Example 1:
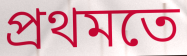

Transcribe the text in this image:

প্ৰথমতে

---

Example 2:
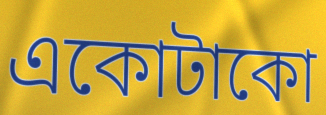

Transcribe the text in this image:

একোটাকো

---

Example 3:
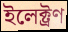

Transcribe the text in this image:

ইলেক্ট্ৰণ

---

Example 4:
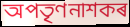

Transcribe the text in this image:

অপতৃণনাশকৰ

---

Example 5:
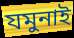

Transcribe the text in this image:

যমুনাই